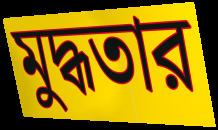
মুদ্ধতার